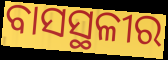
ବାସସ୍ଥଳୀର